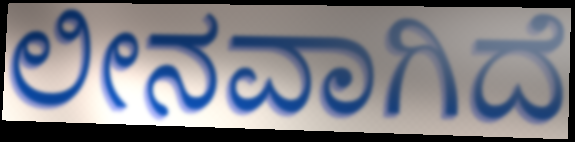
ಲೀನವಾಗಿದೆ